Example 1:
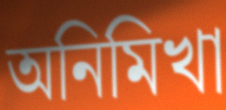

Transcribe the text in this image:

অনিমিখা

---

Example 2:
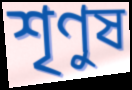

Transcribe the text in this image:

শৃণুষ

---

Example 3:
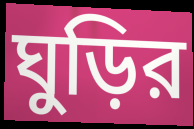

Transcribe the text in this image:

ঘুড়ির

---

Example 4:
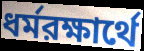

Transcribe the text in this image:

ধর্মরক্ষার্থে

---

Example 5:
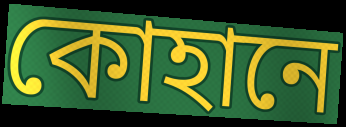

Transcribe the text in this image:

কোহানে